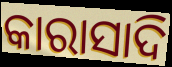
କାରାସାଦି